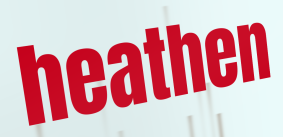
heathen